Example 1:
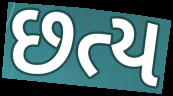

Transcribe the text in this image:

છત્ય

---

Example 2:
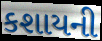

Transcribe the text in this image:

કશાયની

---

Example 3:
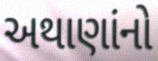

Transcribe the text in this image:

અથાણાંનો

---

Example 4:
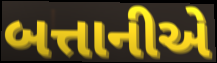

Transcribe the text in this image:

બત્તાનીએ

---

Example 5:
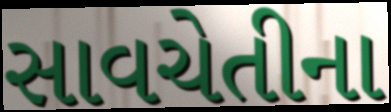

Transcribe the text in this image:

સાવચેતીના